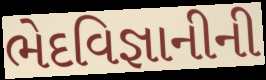
ભેદવિજ્ઞાનીની